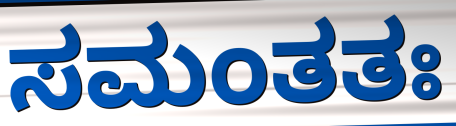
ಸಮಂತತಃ